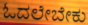
ಓದಲೇಬೇಕು